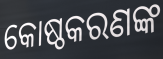
କୋଷ୍ଠକରଣଙ୍କ